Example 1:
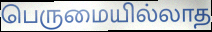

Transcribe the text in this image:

பெருமையில்லாத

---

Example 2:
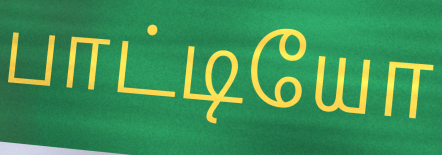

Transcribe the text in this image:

பாட்டியோ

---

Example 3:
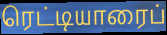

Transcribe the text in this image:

ரெட்டியாரைப்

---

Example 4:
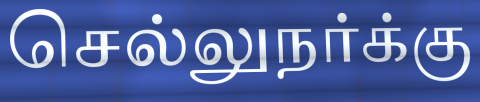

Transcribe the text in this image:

செல்லுநர்க்கு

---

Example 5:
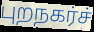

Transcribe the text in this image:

புறநகர்ச்